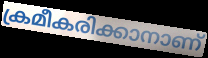
ക്രമീകരിക്കാനാണ്